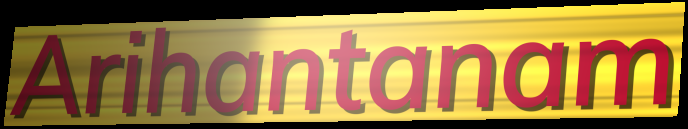
Arihantanam